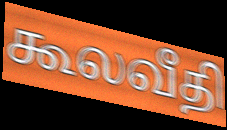
கூலவீதி